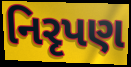
નિરૃપણ